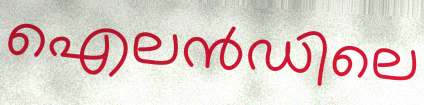
ഐലൻഡിലെ